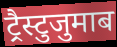
ट्रैस्टुजुमाब